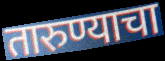
तारुण्याचा